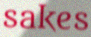
sakes